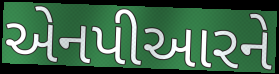
એનપીઆરને